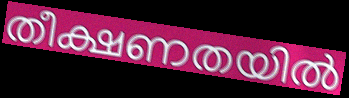
തീക്ഷണതയിൽ